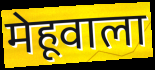
मेहूवाला